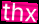
thx